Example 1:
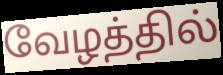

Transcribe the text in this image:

வேழத்தில்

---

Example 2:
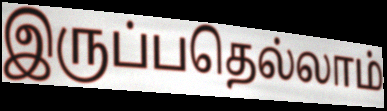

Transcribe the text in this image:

இருப்பதெல்லாம்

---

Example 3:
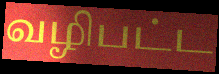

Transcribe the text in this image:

வழிபட்ட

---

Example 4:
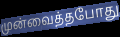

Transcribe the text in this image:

முன்வைத்தபோது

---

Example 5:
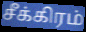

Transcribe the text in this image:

சீக்கிரம்